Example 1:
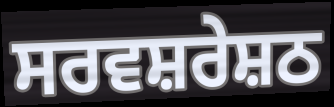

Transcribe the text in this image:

ਸਰਵਸ਼ਰੇਸ਼ਠ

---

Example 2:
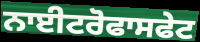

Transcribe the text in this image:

ਨਾਈਟਰੋਫਾਸਫੇਟ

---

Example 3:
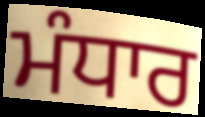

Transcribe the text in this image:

ਮੰਧਾਰ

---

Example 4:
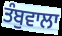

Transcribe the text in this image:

ਤੰਬੁਵਾਲਾ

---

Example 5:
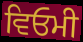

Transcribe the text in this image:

ਵਿਓਮੀ